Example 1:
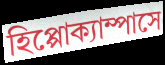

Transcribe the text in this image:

হিপ্পোক্যাম্পাসে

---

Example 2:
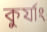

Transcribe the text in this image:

কুর্যাং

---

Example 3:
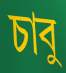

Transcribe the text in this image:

চাবু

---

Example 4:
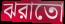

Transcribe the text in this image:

ঝরাতো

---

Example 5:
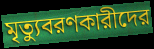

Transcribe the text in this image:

মৃত্যুবরণকারীদের